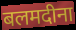
बलमदीना